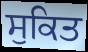
ਸੁਕਿਤ